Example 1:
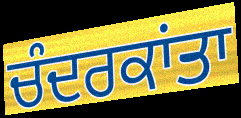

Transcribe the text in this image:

ਚੰਦਰਕਾਂਤਾ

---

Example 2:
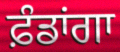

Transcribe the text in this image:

ਫ਼ੰਡਾਂਗਾ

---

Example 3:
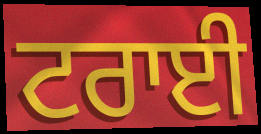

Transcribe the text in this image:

ਟਰਾਈ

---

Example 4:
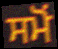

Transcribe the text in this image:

ਸਮੋਂ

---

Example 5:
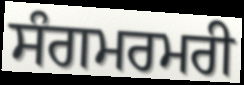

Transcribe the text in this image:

ਸੰਗਮਰਮਰੀ